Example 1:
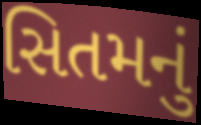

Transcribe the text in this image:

સિતમનું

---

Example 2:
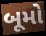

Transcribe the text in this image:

બૂમો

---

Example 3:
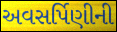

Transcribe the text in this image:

અવસર્પિણીની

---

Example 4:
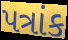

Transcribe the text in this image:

પત્રાંક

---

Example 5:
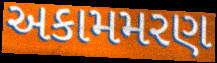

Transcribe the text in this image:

અકામમરણ